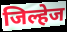
जिल्हेज